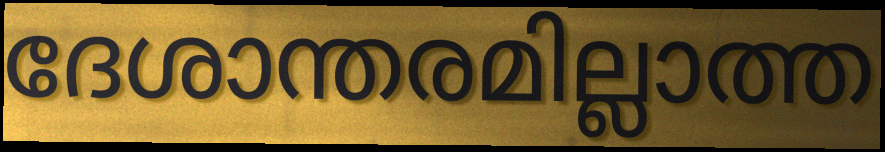
ദേശാന്തരമില്ലാത്ത